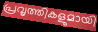
പ്രവൃത്തികളുമായി